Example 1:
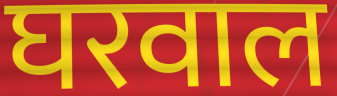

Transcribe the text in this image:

घरवाल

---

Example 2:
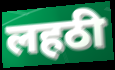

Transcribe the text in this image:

लहठी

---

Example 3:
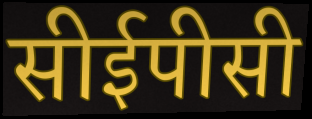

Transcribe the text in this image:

सीईपीसी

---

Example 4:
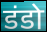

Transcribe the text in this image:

डंडो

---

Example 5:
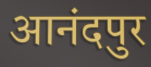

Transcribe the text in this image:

आनंदपुर